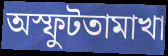
অস্ফুটতামাখা